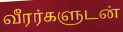
வீரர்களுடன்